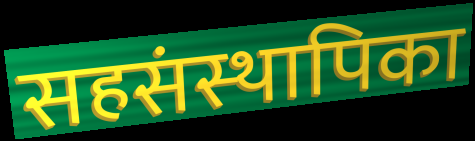
सहसंस्थापिका